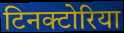
टिनक्टोरिया